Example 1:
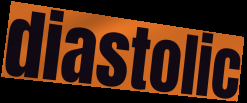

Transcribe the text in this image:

diastolic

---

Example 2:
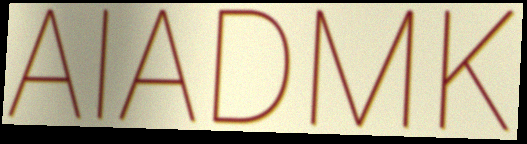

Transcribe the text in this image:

AIADMK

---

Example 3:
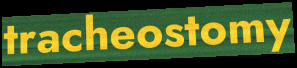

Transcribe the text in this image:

tracheostomy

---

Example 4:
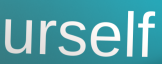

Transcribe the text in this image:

urself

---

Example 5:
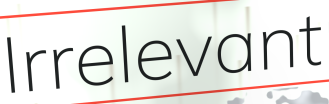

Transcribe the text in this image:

Irrelevant